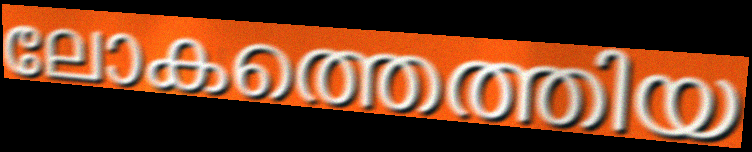
ലോകത്തെത്തിയ